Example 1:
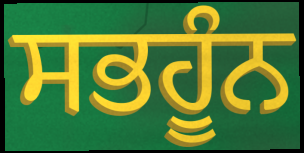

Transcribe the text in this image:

ਸਭਹੂੰਨ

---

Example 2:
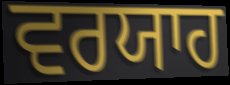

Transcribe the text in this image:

ਵਰਯਾਹ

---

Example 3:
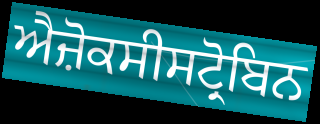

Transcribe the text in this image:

ਐਜ਼ੋਕਸੀਸਟ੍ਰੋਬਿਨ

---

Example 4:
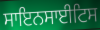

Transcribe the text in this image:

ਸਾਇਨਸਾਈਟਿਸ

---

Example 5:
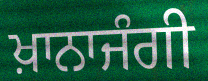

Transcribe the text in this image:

ਖ਼ਾਨਾਜੰਗੀ